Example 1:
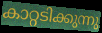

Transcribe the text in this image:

കാറ്റടിക്കുന്നു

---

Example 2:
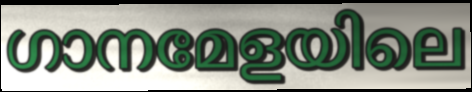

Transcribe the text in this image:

ഗാനമേളയിലെ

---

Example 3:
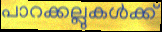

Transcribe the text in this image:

പാറക്കല്ലുകൾക്ക്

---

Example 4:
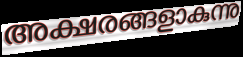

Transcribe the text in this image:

അക്ഷരങ്ങളാകുന്നു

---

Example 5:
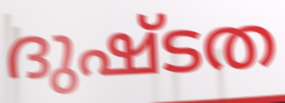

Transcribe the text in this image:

ദുഷ്ടത